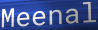
Meenal